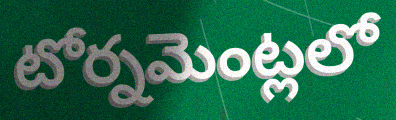
టోర్నమెంట్లలో